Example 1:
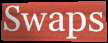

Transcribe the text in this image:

Swaps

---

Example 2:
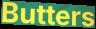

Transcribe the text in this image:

Butters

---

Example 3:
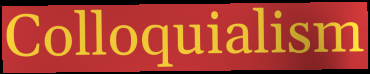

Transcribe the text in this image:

Colloquialism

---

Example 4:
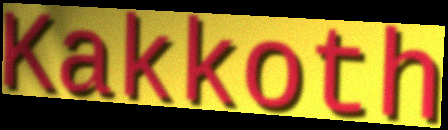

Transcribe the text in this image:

Kakkoth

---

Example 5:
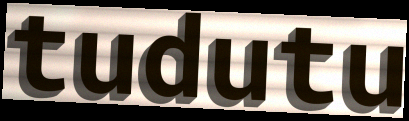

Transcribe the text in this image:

tudutu